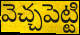
వెచ్చపెట్టి